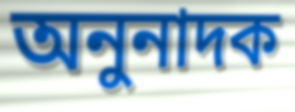
অনুনাদক